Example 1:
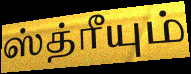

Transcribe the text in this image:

ஸ்த்ரீயும்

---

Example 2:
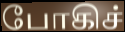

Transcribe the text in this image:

போகிச்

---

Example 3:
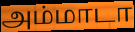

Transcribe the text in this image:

அம்மாடா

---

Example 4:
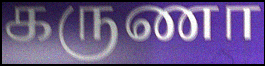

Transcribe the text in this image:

கருணா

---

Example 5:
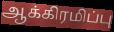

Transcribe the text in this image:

ஆக்கிரமிப்பு